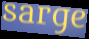
sarge